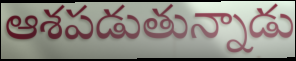
ఆశపడుతున్నాడు